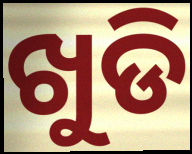
ଖୁଡି